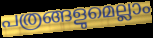
പത്രങ്ങളുമെല്ലാം